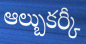
ఆల్బుకర్కీ